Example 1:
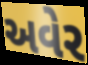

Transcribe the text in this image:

અવેર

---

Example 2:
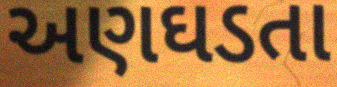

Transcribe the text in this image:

અણઘડતા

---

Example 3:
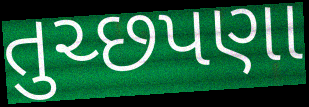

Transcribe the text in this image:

તુચ્છપણા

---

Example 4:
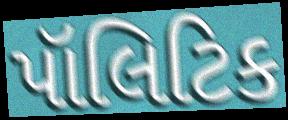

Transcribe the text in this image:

પૉલિટિક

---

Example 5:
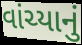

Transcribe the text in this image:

વાંચ્યાનું